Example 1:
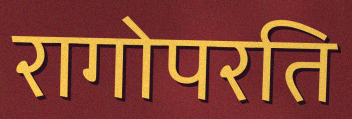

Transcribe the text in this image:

रागोपरति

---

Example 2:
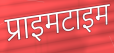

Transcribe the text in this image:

प्राइमटाइम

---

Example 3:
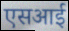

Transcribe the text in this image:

एसआई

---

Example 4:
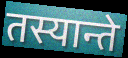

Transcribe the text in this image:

तस्यान्ते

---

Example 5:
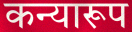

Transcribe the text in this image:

कन्यारूप